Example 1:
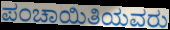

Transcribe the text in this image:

ಪಂಚಾಯಿತಿಯವರು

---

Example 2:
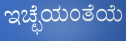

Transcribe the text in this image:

ಇಚ್ಛೆಯಂತೆಯೆ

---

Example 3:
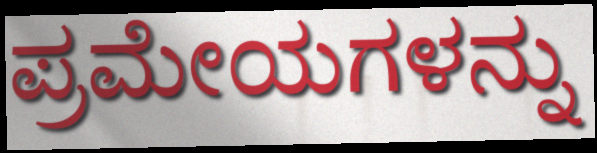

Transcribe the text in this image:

ಪ್ರಮೇಯಗಳನ್ನು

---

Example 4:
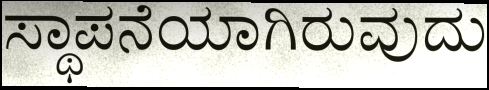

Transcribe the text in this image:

ಸ್ಥಾಪನೆಯಾಗಿರುವುದು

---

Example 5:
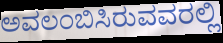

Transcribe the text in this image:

ಅವಲಂಬಿಸಿರುವವರಲ್ಲಿ